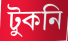
টুকনি